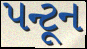
પન્ટૂન